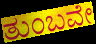
ತುಂಬವೇ